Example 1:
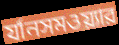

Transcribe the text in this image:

র্যানসমওয়্যার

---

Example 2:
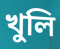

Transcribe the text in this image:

খুলি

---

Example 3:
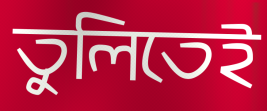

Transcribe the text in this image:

তুলিতেই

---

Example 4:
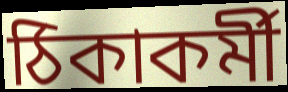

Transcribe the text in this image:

ঠিকাকর্মী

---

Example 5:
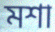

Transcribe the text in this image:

মশা